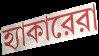
হ্যাকারেরা